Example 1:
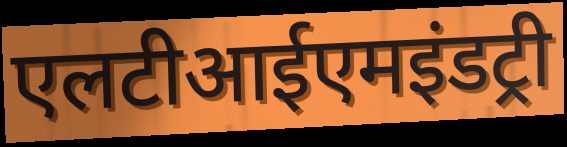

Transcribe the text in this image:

एलटीआईएमइंडट्री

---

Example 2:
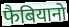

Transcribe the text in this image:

फैबियानो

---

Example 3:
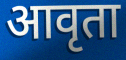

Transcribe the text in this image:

आवृता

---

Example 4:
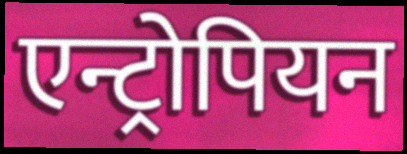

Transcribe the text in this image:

एन्ट्रोपियन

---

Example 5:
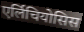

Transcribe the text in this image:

एर्लिचियोसिस